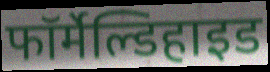
फॉर्मेल्डिहाइड